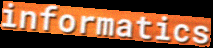
informatics